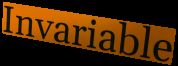
Invariable